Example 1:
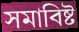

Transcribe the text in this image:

সমাবিষ্ট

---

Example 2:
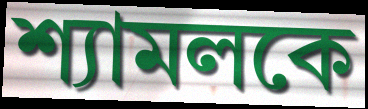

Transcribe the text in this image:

শ্যামলকে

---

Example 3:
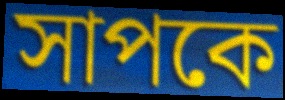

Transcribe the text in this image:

সাপকে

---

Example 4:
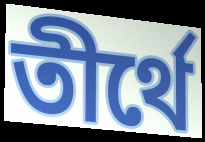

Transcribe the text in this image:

তীর্থে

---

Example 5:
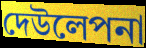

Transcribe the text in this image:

দেউলেপনা